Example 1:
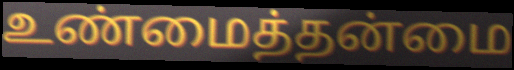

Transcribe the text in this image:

உண்மைத்தன்மை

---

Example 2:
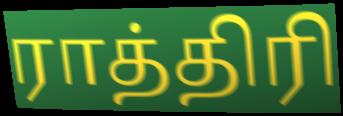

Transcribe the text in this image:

ராத்திரி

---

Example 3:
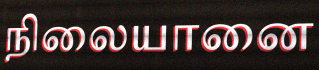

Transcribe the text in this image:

நிலையானை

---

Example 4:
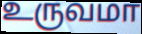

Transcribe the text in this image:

உருவமா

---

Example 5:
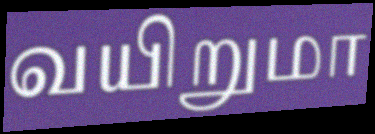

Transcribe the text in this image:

வயிறுமா